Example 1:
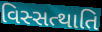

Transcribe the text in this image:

વિસ્સત્થાતિ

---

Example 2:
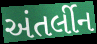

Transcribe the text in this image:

અંતર્લીન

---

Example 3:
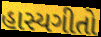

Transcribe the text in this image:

હાસ્યગીતો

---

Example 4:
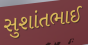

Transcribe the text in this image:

સુશાંતભાઈ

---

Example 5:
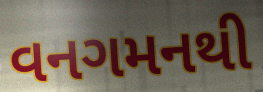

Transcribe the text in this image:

વનગમનથી